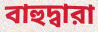
বাহুদ্বারা